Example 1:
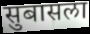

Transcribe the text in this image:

सुबासला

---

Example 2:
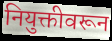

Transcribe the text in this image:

नियुक्तीवरून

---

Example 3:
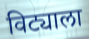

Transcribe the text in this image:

विट्याला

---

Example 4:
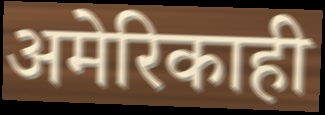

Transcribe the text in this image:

अमेरिकाही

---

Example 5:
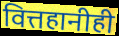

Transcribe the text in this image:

वित्तहानीही